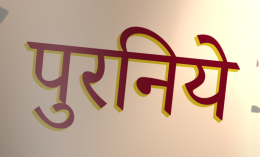
पुरनिये